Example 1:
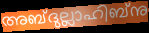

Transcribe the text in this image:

അബ്ദുല്ലാഹിബ്നു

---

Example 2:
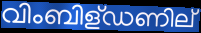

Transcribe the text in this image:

വിംബിള്ഡണില്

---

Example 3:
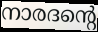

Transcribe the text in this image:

നാരദന്റെ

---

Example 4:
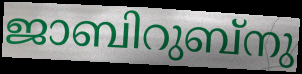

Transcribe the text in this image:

ജാബിറുബ്നു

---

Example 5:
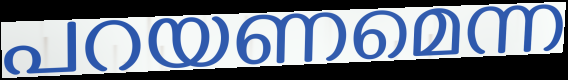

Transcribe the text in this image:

പറയണമെന്ന